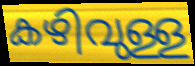
കഴിവുള്ള